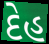
દેહ